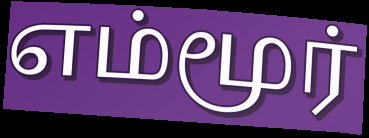
எம்மூர்